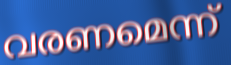
വരണമെന്ന്